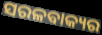
ସରଳବାକ୍ୟର